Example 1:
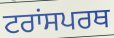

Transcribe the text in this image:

ਟਰਾਂਸਪਰਥ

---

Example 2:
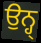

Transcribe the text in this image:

ਉਨ੍ਹ੍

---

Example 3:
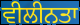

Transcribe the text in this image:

ਵੀਲੀਨਤਾ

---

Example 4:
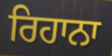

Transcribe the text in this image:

ਰਿਹਾਨਾ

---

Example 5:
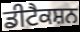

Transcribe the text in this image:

ਡੀਟੈਕਸ਼ਨ